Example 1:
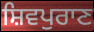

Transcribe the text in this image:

ਸ਼ਿਵਪੁਰਾਣ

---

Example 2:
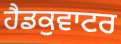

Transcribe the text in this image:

ਹੈਡਕੁਵਾਟਰ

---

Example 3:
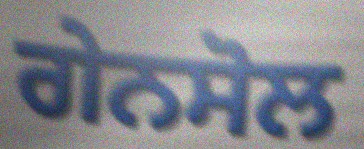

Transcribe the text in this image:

ਗੇਨਸੋਲ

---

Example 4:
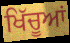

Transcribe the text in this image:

ਖਿੱਚੂਆਂ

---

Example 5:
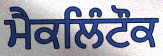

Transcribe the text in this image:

ਮੈਕਲਿੰਟੌਕ